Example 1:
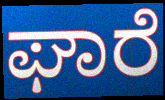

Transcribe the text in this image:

ಘಾರೆ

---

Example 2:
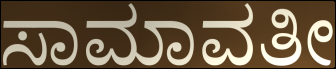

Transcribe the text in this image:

ಸಾಮಾವತೀ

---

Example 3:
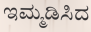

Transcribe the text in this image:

ಇಮ್ಮಡಿಸಿದ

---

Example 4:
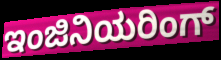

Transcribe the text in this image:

ಇಂಜಿನಿಯರಿಂಗ್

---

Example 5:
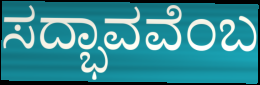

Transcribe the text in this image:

ಸದ್ಭಾವವೆಂಬ